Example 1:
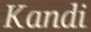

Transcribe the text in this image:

Kandi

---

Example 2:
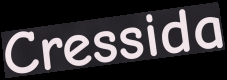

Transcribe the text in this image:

Cressida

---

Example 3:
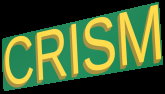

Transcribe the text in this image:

CRISM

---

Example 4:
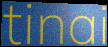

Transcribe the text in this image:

tinai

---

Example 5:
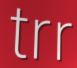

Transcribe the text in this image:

trr